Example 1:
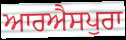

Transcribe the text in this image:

ਆਰਐਸਪੁਰਾ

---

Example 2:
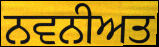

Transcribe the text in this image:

ਨਵਨੀਅਤ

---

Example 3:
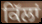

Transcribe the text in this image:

ਕਿੱਲਾਂ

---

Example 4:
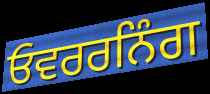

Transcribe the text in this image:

ਓਵਰਰਨਿੰਗ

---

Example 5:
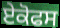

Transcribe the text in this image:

ਏਕੋਫਸ